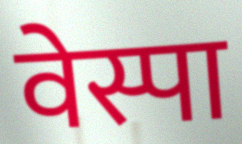
वेस्पा